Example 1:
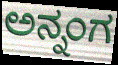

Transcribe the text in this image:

ಅನ್ನಂಗ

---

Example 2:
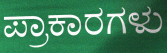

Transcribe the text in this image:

ಪ್ರಾಕಾರಗಳು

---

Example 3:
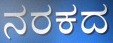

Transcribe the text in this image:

ನರಕದ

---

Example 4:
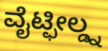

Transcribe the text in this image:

ವೈಟ್ಫೀಲ್ಡ್ನ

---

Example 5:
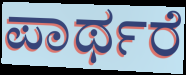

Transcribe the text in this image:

ಪಾರ್ಥರೆ